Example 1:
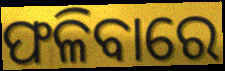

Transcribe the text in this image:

ଫଳିବାରେ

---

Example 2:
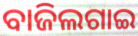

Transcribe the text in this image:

ବାଜିଲଗାଇ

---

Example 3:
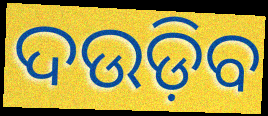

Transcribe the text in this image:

ଦଉଡ଼ିବ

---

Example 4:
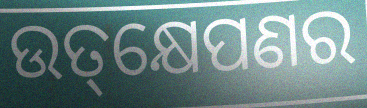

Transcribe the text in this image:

ଉତ୍‌କ୍ଷେପଣର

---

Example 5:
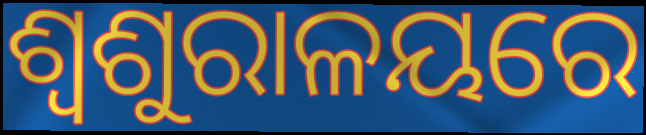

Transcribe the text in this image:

ଶ୍ଵଶୁରାଳୟରେ